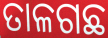
ତାଳଗଛ